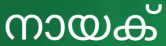
നായക്